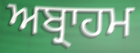
ਅਬ੍ਰਾਹਮ